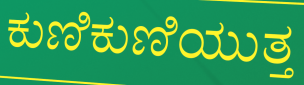
ಕುಣಿಕುಣಿಯುತ್ತ